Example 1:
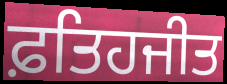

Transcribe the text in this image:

ਫ਼ਤਿਹਜੀਤ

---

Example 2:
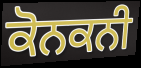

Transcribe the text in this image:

ਕੋਨਕਨੀ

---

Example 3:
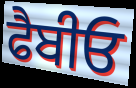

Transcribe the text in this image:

ਫੈਬੀਓ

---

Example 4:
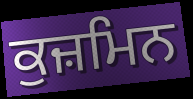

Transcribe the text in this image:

ਕੁਜ਼ਮਿਨ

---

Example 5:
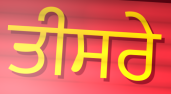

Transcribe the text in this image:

ਤੀਸਰੇ